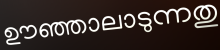
ഊഞ്ഞാലാടുന്നതു